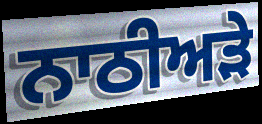
ਨਾਠੀਅੜੇ